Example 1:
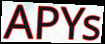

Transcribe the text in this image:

APYs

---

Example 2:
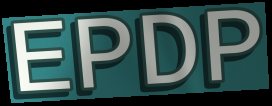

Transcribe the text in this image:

EPDP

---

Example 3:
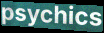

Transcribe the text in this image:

psychics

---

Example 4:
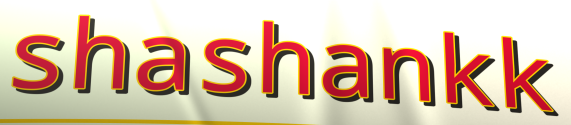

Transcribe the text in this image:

shashankk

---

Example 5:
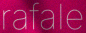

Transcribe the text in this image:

rafale